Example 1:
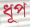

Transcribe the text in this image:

ধূপ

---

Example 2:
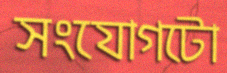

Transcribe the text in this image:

সংযোগটো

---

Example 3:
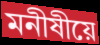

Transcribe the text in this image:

মনীষীয়ে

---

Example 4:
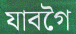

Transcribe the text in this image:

যাবগৈ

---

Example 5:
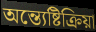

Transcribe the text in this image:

অন্ত্যেষ্টিক্ৰিয়া